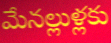
మేనల్లుళ్లకు